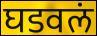
घडवलं